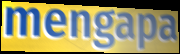
mengapa